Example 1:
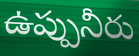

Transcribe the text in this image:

ఉప్పునీరు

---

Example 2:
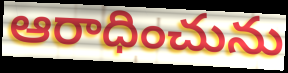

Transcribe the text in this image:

ఆరాధించును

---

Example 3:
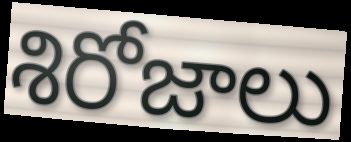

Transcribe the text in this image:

శిరోజాలు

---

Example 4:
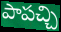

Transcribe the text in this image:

పాపచ్చి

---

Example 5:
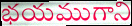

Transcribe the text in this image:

భయముగాని